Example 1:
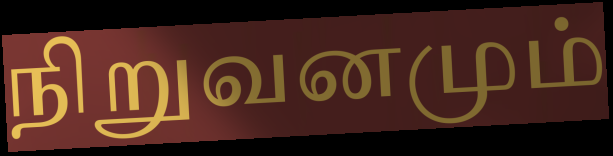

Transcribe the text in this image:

நிறுவனமும்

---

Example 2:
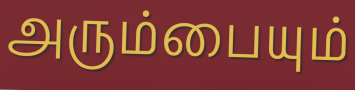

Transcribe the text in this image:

அரும்பையும்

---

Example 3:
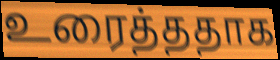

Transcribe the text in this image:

உரைத்ததாக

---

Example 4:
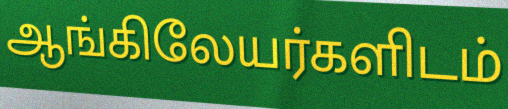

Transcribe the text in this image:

ஆங்கிலேயர்களிடம்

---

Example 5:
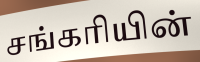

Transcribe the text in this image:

சங்கரியின்